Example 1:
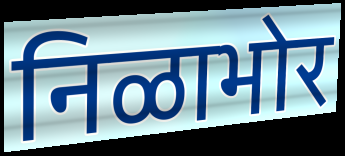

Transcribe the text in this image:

निळाभोर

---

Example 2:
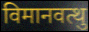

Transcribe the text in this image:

विमानवत्थु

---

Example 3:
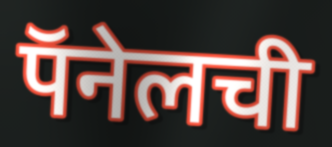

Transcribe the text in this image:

पॅनेलची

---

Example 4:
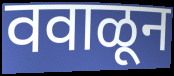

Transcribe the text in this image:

ववाळून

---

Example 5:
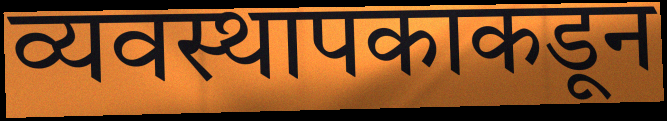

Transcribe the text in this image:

व्यवस्थापकाकडून